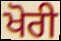
ਖੋਰੀ